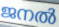
ജനൽ